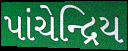
પાંચેન્દ્રિય